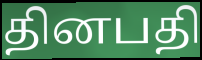
தினபதி